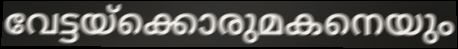
വേട്ടയ്ക്കൊരുമകനെയും